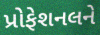
પ્રોફેશનલને